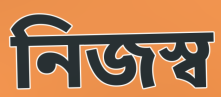
নিজস্ব